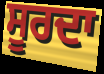
ਸੂਰਦਾ